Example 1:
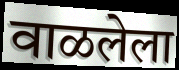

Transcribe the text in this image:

वाळलेला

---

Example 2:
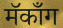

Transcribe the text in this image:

मॅकाँग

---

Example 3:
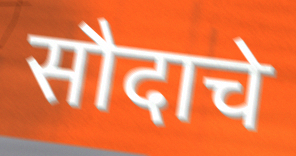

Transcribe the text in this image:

सौदाचे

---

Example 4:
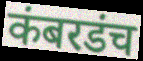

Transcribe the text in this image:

कंबरडंच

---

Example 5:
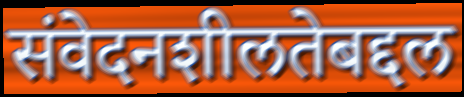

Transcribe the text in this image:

संवेदनशीलतेबद्दल